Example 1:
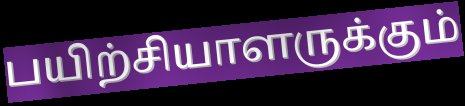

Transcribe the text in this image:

பயிற்சியாளருக்கும்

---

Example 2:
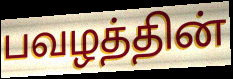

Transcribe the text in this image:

பவழத்தின்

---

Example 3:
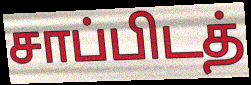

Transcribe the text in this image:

சாப்பிடத்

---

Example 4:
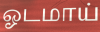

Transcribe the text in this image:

ஓடமாய்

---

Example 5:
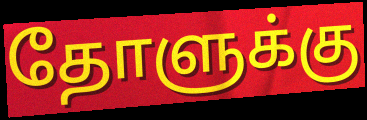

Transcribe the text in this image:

தோளுக்கு